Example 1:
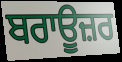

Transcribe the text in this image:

ਬਰਾਊਜ਼ਰ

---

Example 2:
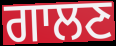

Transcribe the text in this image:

ਗਾਲਣ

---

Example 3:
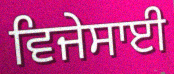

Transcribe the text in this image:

ਵਿਜੇਸਾਈ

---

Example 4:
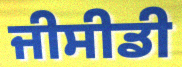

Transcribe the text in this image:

ਜੀਸੀਡੀ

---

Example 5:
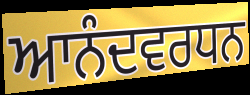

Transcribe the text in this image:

ਆਨੰਦਵਰਧਨ